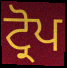
ਟ੍ਰੋਪ